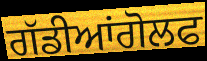
ਗੱਡੀਆਂਗੋਲਫ